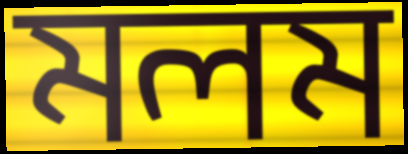
মলম